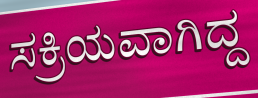
ಸಕ್ರಿಯವಾಗಿದ್ದ